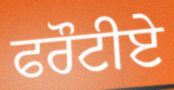
ਫਰੌਟੀਏ